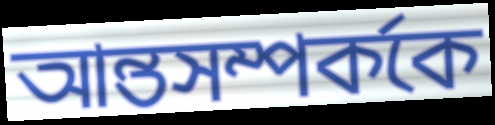
আন্তসম্পর্ককে